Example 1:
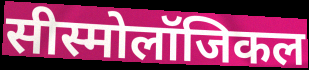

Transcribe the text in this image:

सीस्मोलॉजिकल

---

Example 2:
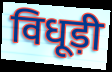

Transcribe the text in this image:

विधूड़ी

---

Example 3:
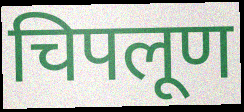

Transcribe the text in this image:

चिपलूण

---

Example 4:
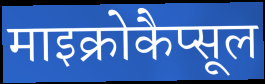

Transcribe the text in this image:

माइक्रोकैप्सूल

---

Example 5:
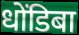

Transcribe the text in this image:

धोंडिबा